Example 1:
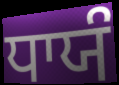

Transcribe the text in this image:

ਧਾਯੰ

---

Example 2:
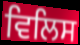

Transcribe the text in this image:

ਵਿਲਿਸ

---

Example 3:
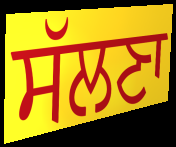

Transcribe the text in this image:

ਸੱਲਣਾ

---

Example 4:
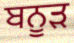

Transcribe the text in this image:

ਬਨੂੜ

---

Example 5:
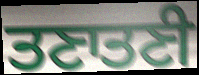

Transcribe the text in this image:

ਤਣਾਤਣੀ